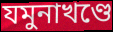
যমুনাখণ্ডে